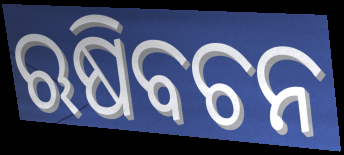
ଋଷିବଚନ